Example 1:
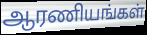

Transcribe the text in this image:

ஆரணியங்கள்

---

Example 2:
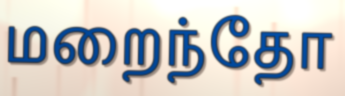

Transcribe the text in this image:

மறைந்தோ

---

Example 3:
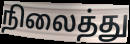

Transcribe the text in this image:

நிலைத்து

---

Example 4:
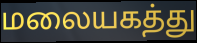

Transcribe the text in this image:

மலையகத்து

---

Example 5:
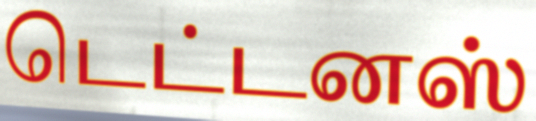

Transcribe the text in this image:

டெட்டனஸ்